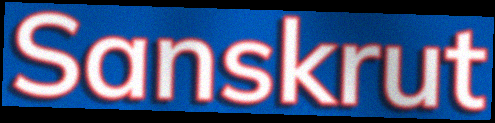
Sanskrut